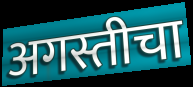
अगस्तीचा